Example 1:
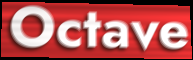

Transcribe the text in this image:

Octave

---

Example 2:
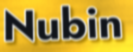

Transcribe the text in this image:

Nubin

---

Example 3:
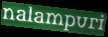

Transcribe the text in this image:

nalampuri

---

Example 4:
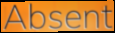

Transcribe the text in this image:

Absent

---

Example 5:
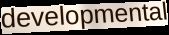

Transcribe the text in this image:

developmental